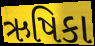
ઋષિકા